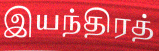
இயந்திரத்